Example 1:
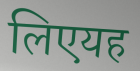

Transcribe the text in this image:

लिएयह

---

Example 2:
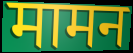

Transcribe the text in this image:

मामन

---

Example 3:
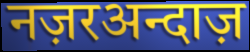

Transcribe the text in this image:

नज़रअन्दाज़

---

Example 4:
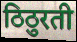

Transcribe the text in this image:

ठिठुरती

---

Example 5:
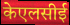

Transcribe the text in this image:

केएलसीई